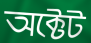
অক্টেট